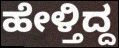
ಹೇಳ್ತಿದ್ದ